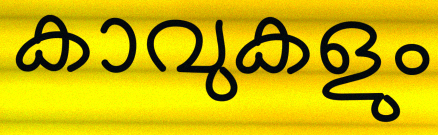
കാവുകളും